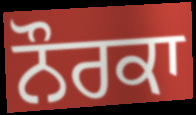
ਨੌਰਕਾ